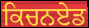
ਕਿਚਨਏਡ